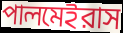
পালমেইরাস